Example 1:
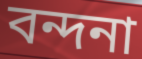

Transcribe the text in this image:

বন্দনা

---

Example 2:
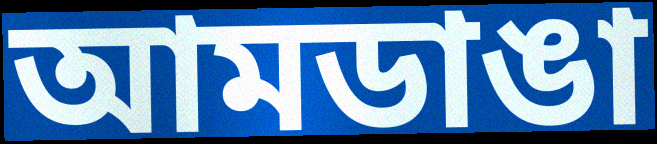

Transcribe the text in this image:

আমডাঙা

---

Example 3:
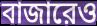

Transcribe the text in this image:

বাজারেও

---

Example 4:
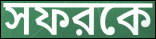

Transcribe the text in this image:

সফরকে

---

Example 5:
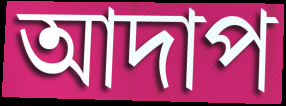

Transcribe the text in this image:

আদাপ